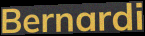
Bernardi